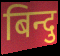
बिन्दु